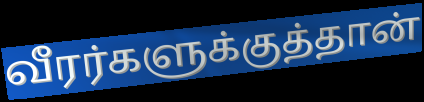
வீரர்களுக்குத்தான்